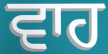
ਵਾਹ